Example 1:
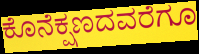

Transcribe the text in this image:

ಕೊನೆಕ್ಷಣದವರೆಗೂ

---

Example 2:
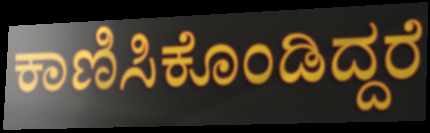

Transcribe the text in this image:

ಕಾಣಿಸಿಕೊಂಡಿದ್ದರೆ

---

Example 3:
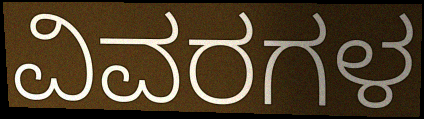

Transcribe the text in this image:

ವಿವರಗಳ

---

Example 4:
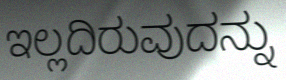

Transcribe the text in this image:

ಇಲ್ಲದಿರುವುದನ್ನು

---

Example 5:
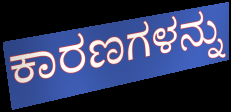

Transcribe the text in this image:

ಕಾರಣಗಳನ್ನು